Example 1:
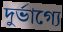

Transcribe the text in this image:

দুর্ভাগ্যে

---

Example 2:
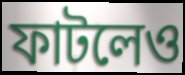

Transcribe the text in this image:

ফাটলেও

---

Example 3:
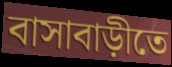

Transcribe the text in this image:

বাসাবাড়ীতে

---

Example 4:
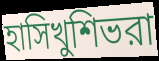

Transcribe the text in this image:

হাসিখুশিভরা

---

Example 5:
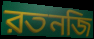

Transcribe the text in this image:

রতনজি